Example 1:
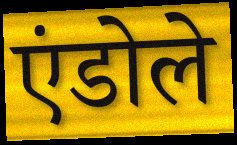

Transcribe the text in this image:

एंडोले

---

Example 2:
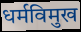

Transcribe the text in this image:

धर्मविमुख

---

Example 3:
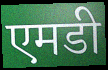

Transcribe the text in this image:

एमडी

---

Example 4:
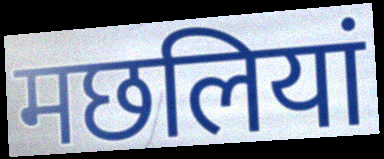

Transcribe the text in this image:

मछलियां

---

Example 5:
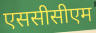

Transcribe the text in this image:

एससीसीएम